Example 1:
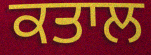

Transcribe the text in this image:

ਕਤਾਲ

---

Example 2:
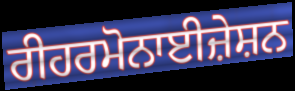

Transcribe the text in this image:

ਰੀਹਰਮੋਨਾਈਜ਼ੇਸ਼ਨ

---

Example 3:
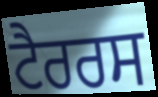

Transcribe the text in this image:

ਟੈਰਰਸ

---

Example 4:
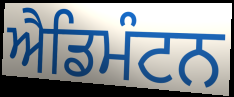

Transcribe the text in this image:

ਐਡਿਮੰਟਨ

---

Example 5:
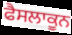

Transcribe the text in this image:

ਫੈਸਲਾਕੂਨ